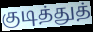
குடித்துத்